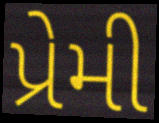
પ્રેમી